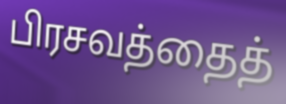
பிரசவத்தைத்